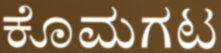
ಕೊಮಗಟ